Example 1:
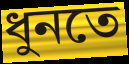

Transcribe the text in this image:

ধুনতে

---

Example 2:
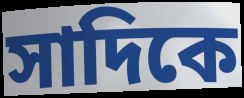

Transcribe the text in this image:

সাদিকে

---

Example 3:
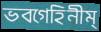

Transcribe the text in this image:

ভবগেহিনীম্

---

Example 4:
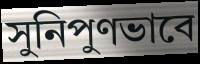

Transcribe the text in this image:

সুনিপুণভাবে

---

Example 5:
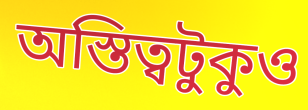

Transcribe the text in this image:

অস্তিত্বটুকুও